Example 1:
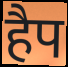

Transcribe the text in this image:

हैप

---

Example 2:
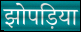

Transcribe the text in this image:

झोपड़िया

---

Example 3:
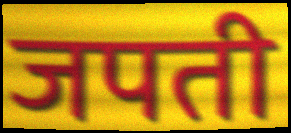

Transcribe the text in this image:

जपती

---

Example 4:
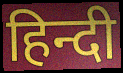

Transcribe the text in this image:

हिन्दी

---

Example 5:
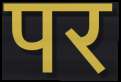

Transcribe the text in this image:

पर